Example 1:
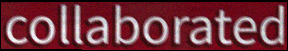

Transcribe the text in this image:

collaborated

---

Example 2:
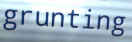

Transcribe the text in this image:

grunting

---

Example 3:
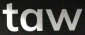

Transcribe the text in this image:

taw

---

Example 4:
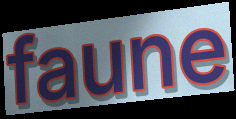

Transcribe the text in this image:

faune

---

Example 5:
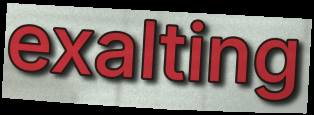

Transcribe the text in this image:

exalting